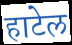
हाटेल